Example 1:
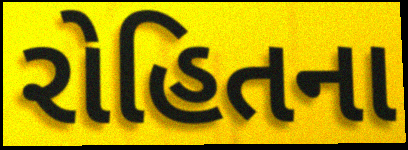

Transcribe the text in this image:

રોહિતના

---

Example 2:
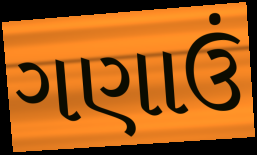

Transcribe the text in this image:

ગણાઉં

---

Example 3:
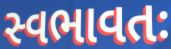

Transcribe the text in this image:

સ્વભાવતઃ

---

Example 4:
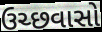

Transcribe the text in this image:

ઉચ્છવાસો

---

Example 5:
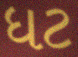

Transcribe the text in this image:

ધટ